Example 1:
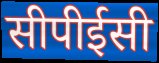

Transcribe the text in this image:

सीपीईसी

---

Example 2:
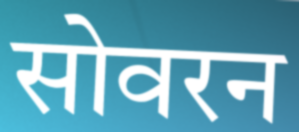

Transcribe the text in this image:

सोवरन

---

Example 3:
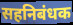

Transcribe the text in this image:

सहनिबंधक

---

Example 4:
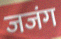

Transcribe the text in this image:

जजंग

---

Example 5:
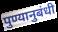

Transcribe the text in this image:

पुण्यानुबंधी